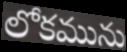
లోకమును